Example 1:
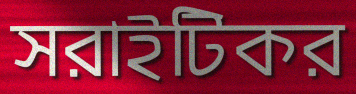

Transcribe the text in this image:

সরাইটিকর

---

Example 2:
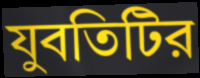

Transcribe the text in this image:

যুবতিটির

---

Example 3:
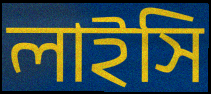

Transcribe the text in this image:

লাইসি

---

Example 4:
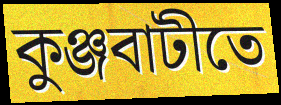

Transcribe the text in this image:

কুঞ্জবাটীতে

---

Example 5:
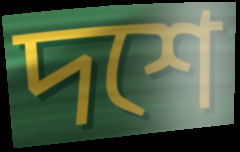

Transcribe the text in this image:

দশে